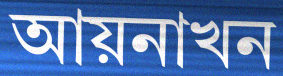
আয়নাখন